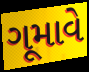
ગૂમાવે